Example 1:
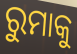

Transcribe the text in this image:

ରୁମାକୁ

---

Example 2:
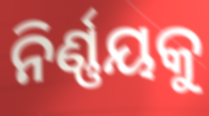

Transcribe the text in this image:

ନିର୍ଣ୍ଣୟକୁ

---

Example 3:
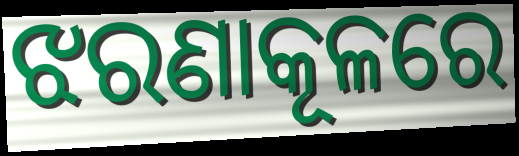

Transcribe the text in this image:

ଝରଣାକୂଳରେ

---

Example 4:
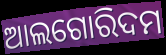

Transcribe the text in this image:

ଆଲଗୋରିଦମ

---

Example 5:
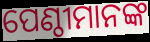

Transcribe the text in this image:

ପେଣ୍ଠୀମାନଙ୍କ